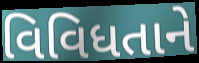
વિવિધતાને